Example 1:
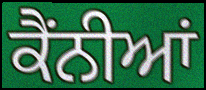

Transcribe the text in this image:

ਕੈਂਨੀਆਂ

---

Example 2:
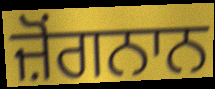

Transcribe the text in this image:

ਜ਼ੋਂਗਨਾਨ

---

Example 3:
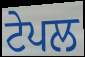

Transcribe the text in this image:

ਟੇਪਲ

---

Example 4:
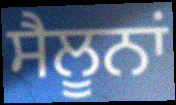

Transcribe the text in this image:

ਸੈਲੂਨਾਂ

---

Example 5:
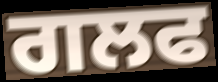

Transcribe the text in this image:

ਗਲਫ